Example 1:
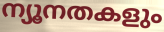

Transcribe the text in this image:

ന്യൂനതകളും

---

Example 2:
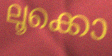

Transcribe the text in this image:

ലൂക്കൊ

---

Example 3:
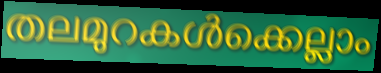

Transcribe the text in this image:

തലമുറകൾക്കെല്ലാം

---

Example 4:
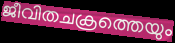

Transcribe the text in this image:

ജീവിതചക്രത്തെയും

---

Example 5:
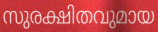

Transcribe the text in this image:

സുരക്ഷിതവുമായ